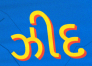
ઝીદ